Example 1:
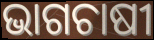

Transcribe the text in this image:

ଭାଗଚାଷୀ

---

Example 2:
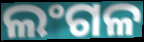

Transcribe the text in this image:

ଲଂଗଳ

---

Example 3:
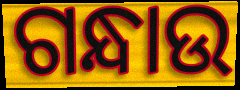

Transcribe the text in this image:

ଗନ୍ଧାଉ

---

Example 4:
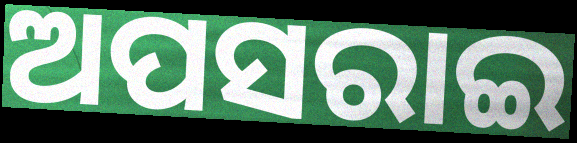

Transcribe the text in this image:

ଅପସରାଇ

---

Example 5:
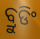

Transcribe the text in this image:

ବ୍ରୁଡିଂ